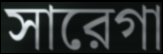
সারেগা